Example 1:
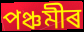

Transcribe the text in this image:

পঞ্চমীৰ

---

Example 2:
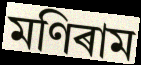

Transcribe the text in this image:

মণিৰাম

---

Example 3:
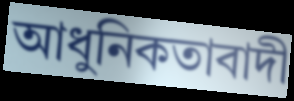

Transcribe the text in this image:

আধুনিকতাবাদী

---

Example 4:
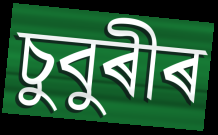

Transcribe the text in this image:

চুবুৰীৰ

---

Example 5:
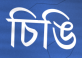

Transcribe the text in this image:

চিঙি